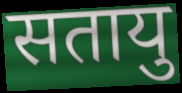
सतायु